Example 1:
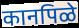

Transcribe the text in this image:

कानपिळे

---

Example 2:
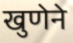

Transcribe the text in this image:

खुणेने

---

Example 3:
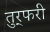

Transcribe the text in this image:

तुर्फरी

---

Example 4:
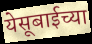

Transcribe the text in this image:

येसूबाईच्या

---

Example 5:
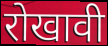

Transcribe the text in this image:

रोखावी